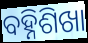
ବହ୍ନିଶିଖା